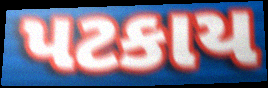
પટકાય